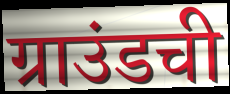
ग्राउंडची